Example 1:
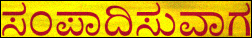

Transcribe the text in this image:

ಸಂಪಾದಿಸುವಾಗ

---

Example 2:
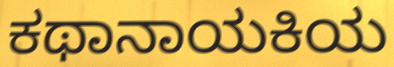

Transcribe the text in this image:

ಕಥಾನಾಯಕಿಯ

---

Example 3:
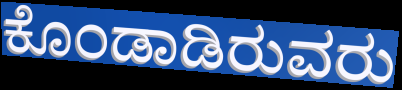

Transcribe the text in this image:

ಕೊಂಡಾಡಿರುವರು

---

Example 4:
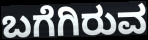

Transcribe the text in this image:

ಬಗೆಗಿರುವ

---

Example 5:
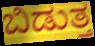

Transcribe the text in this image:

ಬಿಡುತ್ತ